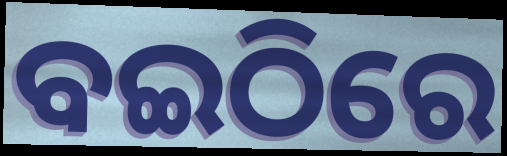
ବଇଠିରେ